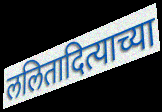
ललितादित्याच्या